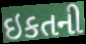
ઇકતની